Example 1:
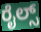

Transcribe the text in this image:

ರೈಲ್ಸ್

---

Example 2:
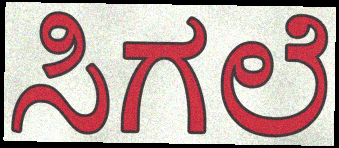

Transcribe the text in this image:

ಸಿಗಲೆ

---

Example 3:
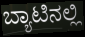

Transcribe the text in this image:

ಬ್ಯಾಟಿನಲ್ಲಿ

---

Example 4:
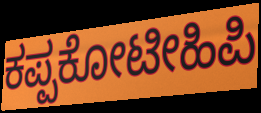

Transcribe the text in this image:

ಕಪ್ಪಕೋಟೀಹಿಪಿ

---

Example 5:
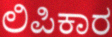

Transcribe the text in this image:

ಲಿಪಿಕಾರ